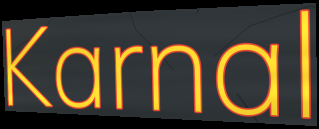
Karnal